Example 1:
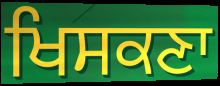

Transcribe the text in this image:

ਖਿਸਕਣਾ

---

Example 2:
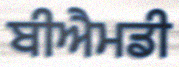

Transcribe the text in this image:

ਬੀਐਮਡੀ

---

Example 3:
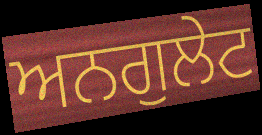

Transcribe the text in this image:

ਅਨਗੁਲੇਟ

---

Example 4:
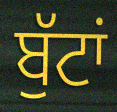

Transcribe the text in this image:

ਬੁੱਟਾਂ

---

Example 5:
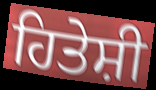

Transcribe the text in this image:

ਹਿਤੇਸ਼ੀ